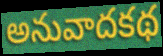
అనువాదకథ